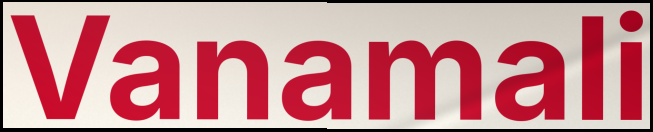
Vanamali